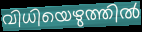
വിധിയെഴുത്തിൽ